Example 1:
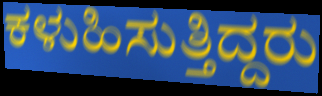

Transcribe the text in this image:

ಕಳುಹಿಸುತ್ತಿದ್ದರು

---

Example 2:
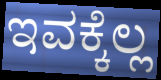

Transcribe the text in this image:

ಇವಕ್ಕೆಲ್ಲ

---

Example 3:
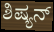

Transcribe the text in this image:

ಶಿಷ್ಯನ್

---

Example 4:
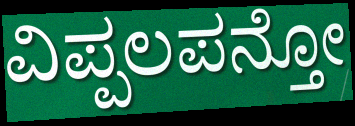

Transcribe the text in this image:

ವಿಪ್ಪಲಪನ್ತೋ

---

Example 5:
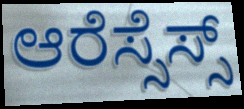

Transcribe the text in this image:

ಆರೆಸ್ಸೆಸ್ಸ್